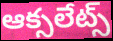
ఆక్సలేట్స్